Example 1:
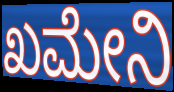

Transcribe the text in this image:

ಖಮೇನಿ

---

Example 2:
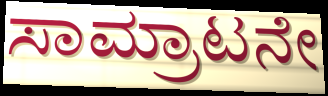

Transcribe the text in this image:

ಸಾಮ್ರಾಟನೇ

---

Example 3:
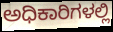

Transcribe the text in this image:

ಅಧಿಕಾರಿಗಳಲ್ಲಿ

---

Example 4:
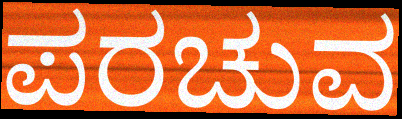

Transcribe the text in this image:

ಪರಚುವ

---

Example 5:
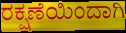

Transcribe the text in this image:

ರಕ್ಷಣೆಯಿಂದಾಗಿ